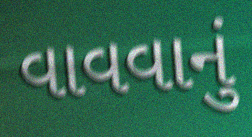
વાવવાનું